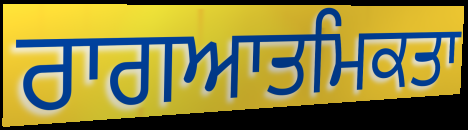
ਰਾਗਆਤਮਿਕਤਾ